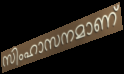
സിംഹാസനമാണ്